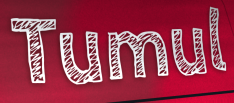
Tumul